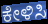
ಕೇಳಿಸಿ